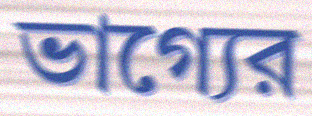
ভাগ্যের